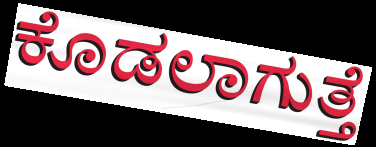
ಕೊಡಲಾಗುತ್ತೆ